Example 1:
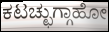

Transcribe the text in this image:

ಕಟಚ್ಛುಗ್ಗಾಹೋ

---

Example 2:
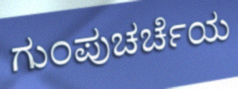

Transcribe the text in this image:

ಗುಂಪುಚರ್ಚೆಯ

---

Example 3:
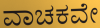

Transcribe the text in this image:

ವಾಚಕವೇ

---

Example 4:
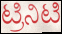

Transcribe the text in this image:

ಟ್ರಿನಿಟಿ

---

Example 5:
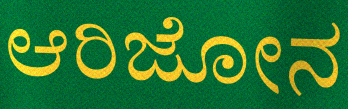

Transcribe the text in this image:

ಆರಿಜೋನ